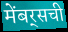
मेंबर्सची